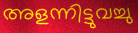
അളന്നിട്ടുവച്ചു